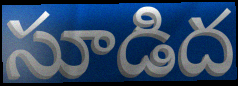
సూడిద